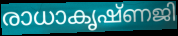
രാധാകൃഷ്ണജി